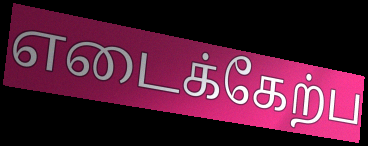
எடைக்கேற்ப